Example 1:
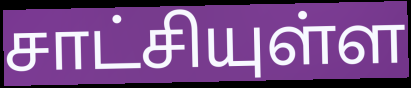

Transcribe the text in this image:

சாட்சியுள்ள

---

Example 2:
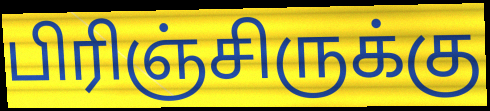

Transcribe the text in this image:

பிரிஞ்சிருக்கு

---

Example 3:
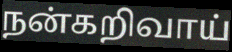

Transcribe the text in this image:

நன்கறிவாய்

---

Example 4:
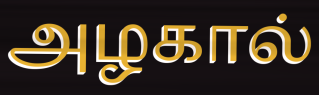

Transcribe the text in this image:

அழகால்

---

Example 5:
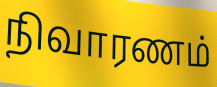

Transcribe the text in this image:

நிவாரணம்